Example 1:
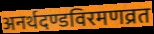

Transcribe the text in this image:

अनर्थदण्डविरमणव्रत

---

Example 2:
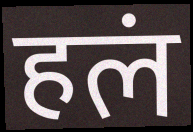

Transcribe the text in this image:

हलं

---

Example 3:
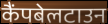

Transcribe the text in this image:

कैंपबेलटाउन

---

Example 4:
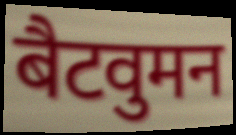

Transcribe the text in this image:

बैटवुमन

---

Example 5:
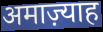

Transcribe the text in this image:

अमाज़्याह